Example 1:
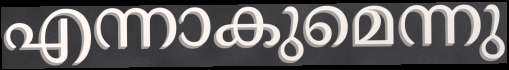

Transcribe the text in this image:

എന്നാകുമെന്നു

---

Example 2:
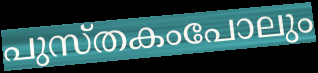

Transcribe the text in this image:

പുസ്തകംപോലും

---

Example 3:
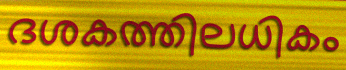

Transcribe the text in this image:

ദശകത്തിലധികം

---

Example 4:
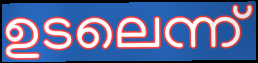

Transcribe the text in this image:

ഉടലെന്ന്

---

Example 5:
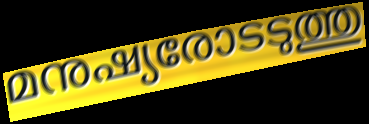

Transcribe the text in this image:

മനുഷ്യരോടടുത്തു